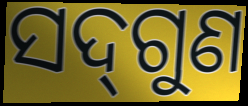
ସଦ୍‌ଗୁଣ